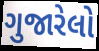
ગુજારેલો